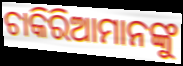
ଚାକିରିଆମାନଙ୍କୁ